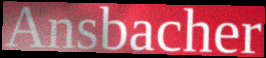
Ansbacher